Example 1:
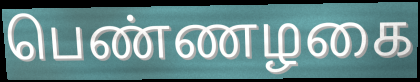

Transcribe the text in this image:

பெண்ணழகை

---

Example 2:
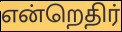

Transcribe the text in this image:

என்றெதிர்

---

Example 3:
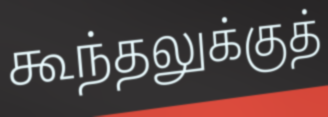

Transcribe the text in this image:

கூந்தலுக்குத்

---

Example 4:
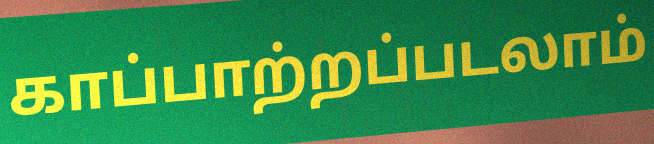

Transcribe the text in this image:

காப்பாற்றப்படலாம்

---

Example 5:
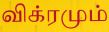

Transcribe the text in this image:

விக்ரமும்